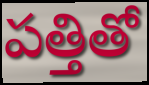
పత్తితో